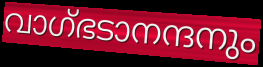
വാഗ്ഭടാനന്ദനും